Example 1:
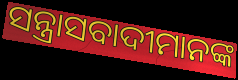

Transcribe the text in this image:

ସନ୍ତ୍ରାସବାଦୀମାନଙ୍କ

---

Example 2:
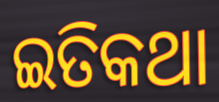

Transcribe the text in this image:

ଇତିକଥା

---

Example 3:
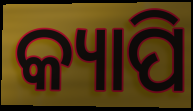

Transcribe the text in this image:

କ୍ୟାପି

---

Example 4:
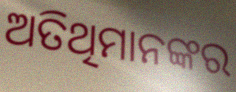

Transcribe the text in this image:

ଅତିଥିମାନଙ୍କର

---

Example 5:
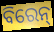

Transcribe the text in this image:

ବିରେନ୍